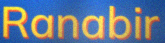
Ranabir